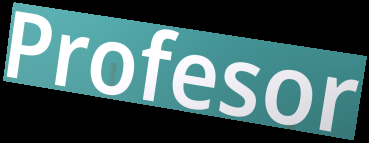
Profesor